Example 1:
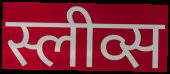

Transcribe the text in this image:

स्लीव्स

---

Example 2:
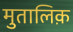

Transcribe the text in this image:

मुतालिक़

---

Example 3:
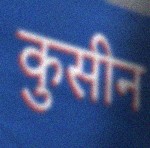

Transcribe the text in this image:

कुसीन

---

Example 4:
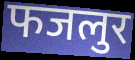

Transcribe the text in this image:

फजलुर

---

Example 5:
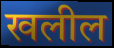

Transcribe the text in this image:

खलील